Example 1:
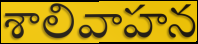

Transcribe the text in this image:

శాలివాహన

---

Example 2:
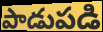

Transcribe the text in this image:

పాడుపడి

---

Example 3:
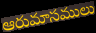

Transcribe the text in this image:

ఆరుమాసములు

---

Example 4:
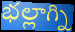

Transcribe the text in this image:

భల్లాగ్ని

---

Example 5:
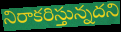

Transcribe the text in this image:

నిరాకరిస్తున్నదని